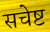
सचेष्ट